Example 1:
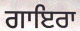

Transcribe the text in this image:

ਗਾਇਰਾ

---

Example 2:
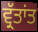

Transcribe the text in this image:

ਵ੍ਰੱਤਾਂਤ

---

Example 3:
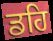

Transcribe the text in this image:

ਡਹਿ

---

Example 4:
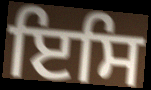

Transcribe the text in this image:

ਇਸਿ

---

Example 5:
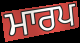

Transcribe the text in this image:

ਮਾਰਪ